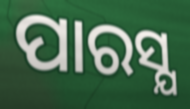
ପାରସ୍ଯ